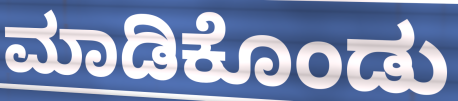
ಮಾಡಿಕೊಂಡು